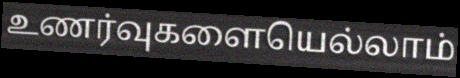
உணர்வுகளையெல்லாம்